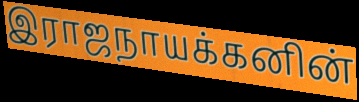
இராஜநாயக்கனின்